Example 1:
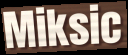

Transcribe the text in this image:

Miksic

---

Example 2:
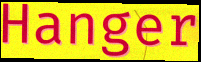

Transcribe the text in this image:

Hanger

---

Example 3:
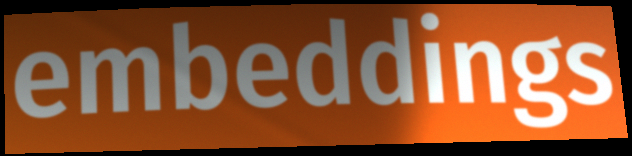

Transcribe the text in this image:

embeddings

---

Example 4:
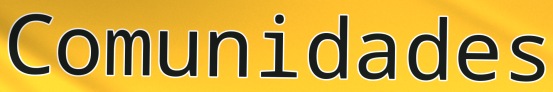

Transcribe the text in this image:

Comunidades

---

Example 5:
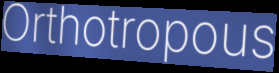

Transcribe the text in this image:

Orthotropous